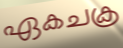
ഏകചക്ര